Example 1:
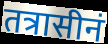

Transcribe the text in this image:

तत्रासीनं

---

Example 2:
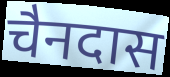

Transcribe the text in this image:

चैनदास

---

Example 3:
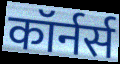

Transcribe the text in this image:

कॉर्नर्स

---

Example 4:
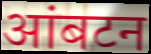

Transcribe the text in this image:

आंबटन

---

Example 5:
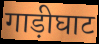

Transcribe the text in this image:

गाड़ीघाट